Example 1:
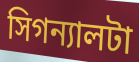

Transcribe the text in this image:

সিগন্যালটা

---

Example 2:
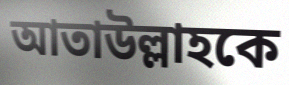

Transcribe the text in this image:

আতাউল্লাহকে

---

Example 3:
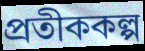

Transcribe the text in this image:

প্রতীককল্প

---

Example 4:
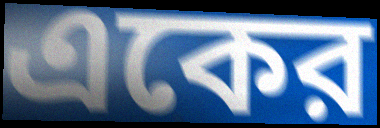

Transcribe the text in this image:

একের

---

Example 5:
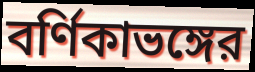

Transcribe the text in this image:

বর্ণিকাভঙ্গের